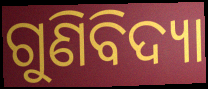
ଗୁଣିବିଦ୍ୟା